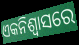
ଏକନିଶ୍ୱାସରେ